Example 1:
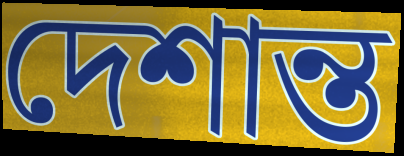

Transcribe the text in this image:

দেশান্ত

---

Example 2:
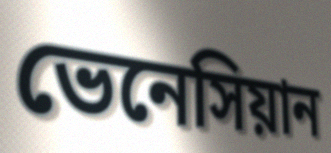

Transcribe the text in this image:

ভেনেসিয়ান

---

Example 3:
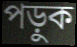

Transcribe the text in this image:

পড়ুক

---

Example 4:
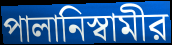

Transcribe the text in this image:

পালানিস্বামীর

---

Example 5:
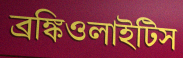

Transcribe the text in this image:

ব্রঙ্কিওলাইটিস